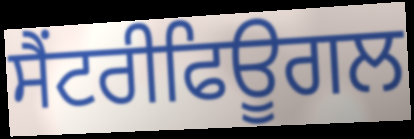
ਸੈਂਟਰੀਫਿਊਗਲ